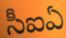
సీఐఏ